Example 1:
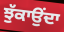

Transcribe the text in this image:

ਝੁੱਕਾਉਂਦਾ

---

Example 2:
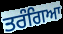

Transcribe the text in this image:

ਤਰੰਗਿਆ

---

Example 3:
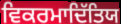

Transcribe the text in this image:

ਵਿਕਰਮਾਦਿੱਤਿਯ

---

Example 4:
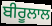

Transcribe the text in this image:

ਬੀਰੂਲਾਲ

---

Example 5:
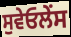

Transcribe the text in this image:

ਸੁਵੇਓਲੇਂਸ